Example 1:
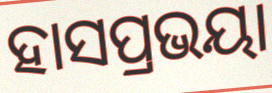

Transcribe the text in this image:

ହାସପ୍ରଭୟା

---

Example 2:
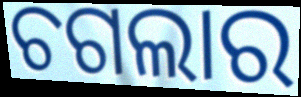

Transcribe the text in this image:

ଚଗଲାର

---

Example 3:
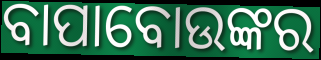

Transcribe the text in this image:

ବାପାବୋଉଙ୍କର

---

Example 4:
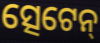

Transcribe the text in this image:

ତ୍ସେଟେନ୍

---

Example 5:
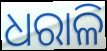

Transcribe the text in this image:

ଧରାଳି